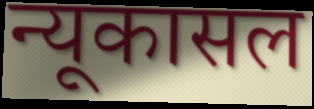
न्यूकासल